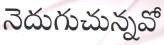
నెదుగుచున్నవో